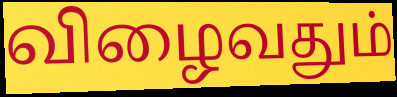
விழைவதும்